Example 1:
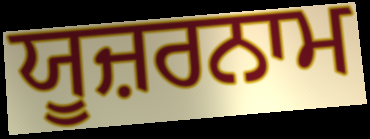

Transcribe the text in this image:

ਯੂਜ਼ਰਨਾਮ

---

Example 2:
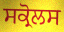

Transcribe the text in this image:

ਸਕ੍ਰੋਲਸ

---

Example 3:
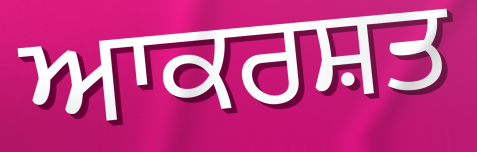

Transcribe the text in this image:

ਆਕਰਸ਼ਤ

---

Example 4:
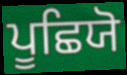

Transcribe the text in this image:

ਪੂਛਿਯੋ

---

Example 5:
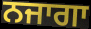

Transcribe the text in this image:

ਨਜਾਗਾ